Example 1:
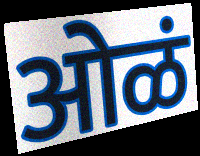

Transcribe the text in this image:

ओळं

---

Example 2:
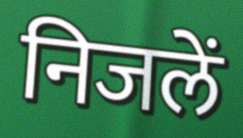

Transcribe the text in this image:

निजलें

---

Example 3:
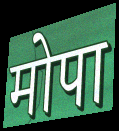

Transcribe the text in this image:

मोपा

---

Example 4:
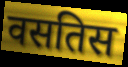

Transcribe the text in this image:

वसतिस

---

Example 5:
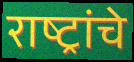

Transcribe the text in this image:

राष्ट्रांचे